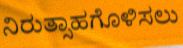
ನಿರುತ್ಸಾಹಗೊಳಿಸಲು